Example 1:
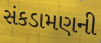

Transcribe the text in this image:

સંકડામણની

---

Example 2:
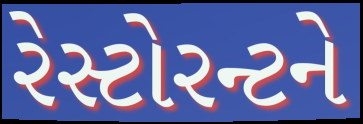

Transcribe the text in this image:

રેસ્ટોરન્ટને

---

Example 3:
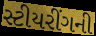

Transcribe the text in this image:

સ્ટીયરીંગની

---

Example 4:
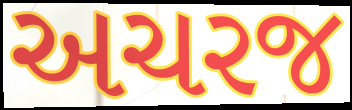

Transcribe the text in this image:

અચરજ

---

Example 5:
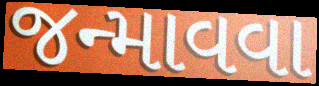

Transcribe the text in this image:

જન્માવવા